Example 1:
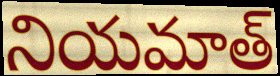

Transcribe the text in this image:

నియమాత్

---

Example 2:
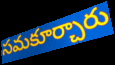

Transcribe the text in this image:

సమకూర్చారు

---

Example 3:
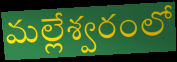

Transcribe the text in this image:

మల్లేశ్వరంలో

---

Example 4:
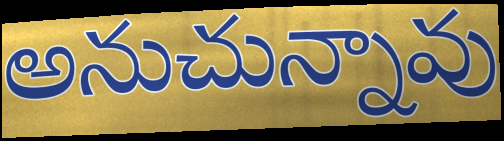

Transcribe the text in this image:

అనుచున్నావు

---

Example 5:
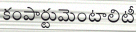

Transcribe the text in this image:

కంపార్టుమెంటాలిటీ